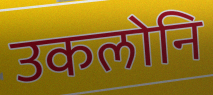
उकलोनि